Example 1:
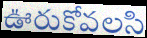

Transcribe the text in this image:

ఊరుకోవలసి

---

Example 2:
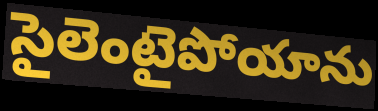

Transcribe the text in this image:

సైలెంటైపోయాను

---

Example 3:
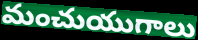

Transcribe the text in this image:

మంచుయుగాలు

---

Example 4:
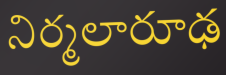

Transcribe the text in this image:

నిర్మలారూఢ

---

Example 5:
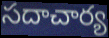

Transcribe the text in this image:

సదాచార్య